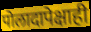
पोलादापेक्षाही